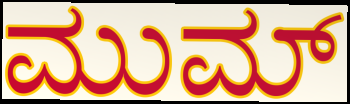
ಮುಮ್